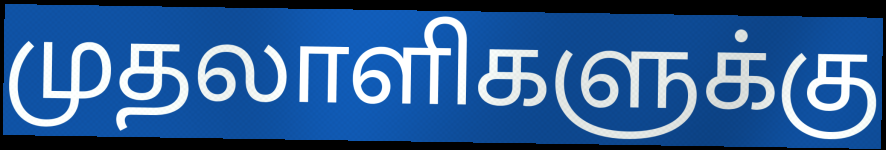
முதலாளிகளுக்கு